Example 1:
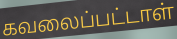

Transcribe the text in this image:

கவலைப்பட்டாள்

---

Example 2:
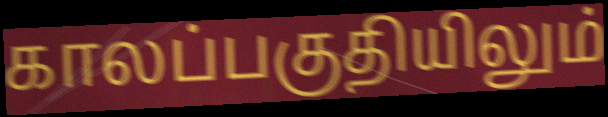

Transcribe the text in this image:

காலப்பகுதியிலும்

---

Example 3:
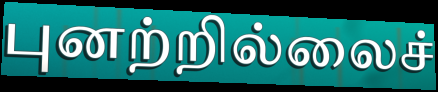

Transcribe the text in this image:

புனற்றில்லைச்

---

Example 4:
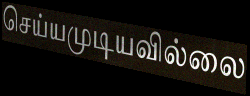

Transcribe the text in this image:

செய்யமுடியவில்லை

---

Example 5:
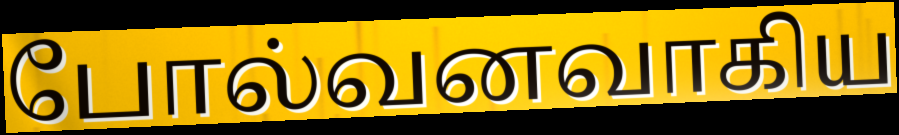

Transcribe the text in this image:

போல்வனவாகிய